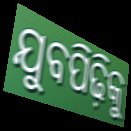
ଯୁବପିଢ଼ିକୁ